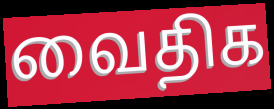
வைதிக